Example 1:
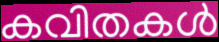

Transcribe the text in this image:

കവിതകൾ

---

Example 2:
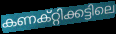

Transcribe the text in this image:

കണക്റ്റിക്കട്ടിലെ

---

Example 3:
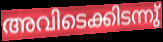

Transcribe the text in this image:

അവിടെക്കിടന്നു്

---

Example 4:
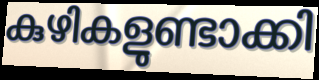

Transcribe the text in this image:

കുഴികളുണ്ടാക്കി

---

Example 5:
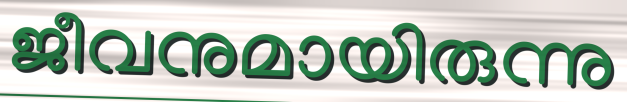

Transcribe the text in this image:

ജീവനുമായിരുന്നു